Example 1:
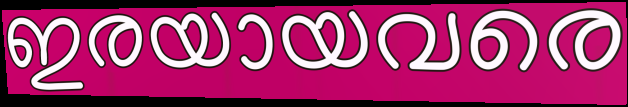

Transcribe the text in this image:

ഇരയായവരെ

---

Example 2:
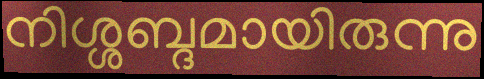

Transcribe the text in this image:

നിശ്ശബ്ദമായിരുന്നു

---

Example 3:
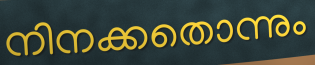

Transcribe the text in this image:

നിനക്കതൊന്നും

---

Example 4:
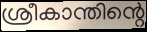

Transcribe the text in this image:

ശ്രീകാന്തിന്റെ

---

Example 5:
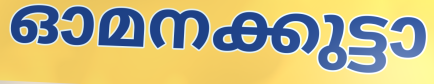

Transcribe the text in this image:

ഓമനക്കുട്ടാ